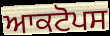
ਆਕਟੋਪਸ